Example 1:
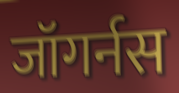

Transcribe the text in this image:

जॉगर्नस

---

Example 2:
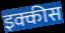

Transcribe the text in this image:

इक्कीस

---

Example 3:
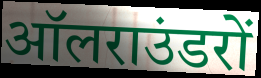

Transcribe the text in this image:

ऑलराउंडरों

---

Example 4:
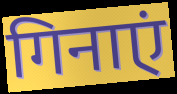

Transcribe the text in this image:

गिनाएं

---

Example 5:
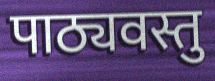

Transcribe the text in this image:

पाठ्यवस्तु